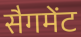
सैगमेंट